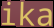
ika